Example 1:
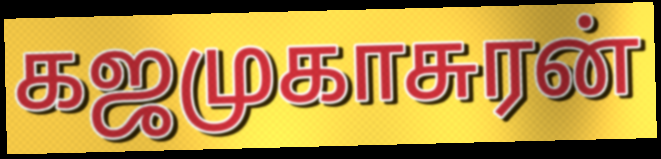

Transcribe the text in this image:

கஜமுகாசுரன்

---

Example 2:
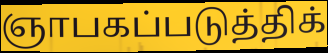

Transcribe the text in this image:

ஞாபகப்படுத்திக்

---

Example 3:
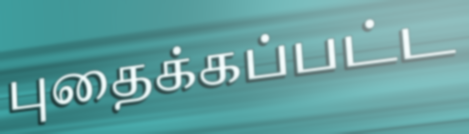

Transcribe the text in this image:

புதைக்கப்பட்ட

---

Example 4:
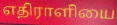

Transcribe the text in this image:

எதிராளியை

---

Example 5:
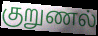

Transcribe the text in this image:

குறுணல்